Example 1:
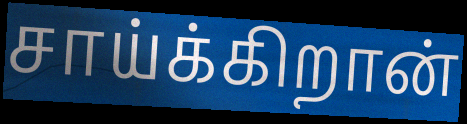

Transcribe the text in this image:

சாய்க்கிறான்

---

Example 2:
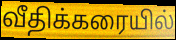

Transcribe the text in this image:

வீதிக்கரையில்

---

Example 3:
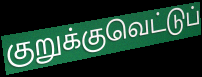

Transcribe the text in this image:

குறுக்குவெட்டுப்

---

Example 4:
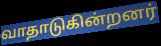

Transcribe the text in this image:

வாதாடுகின்றனர்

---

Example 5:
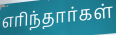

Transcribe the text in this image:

எரிந்தார்கள்